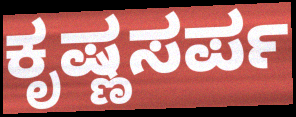
ಕೃಷ್ಣಸರ್ಪ